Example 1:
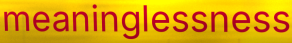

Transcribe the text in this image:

meaninglessness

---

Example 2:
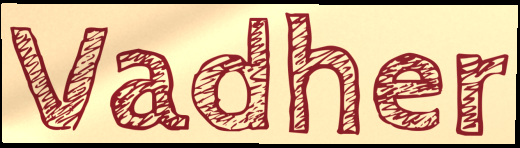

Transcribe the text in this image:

Vadher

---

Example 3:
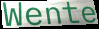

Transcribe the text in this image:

Wente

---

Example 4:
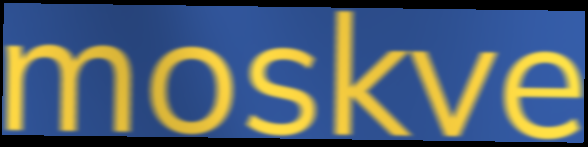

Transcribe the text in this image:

moskve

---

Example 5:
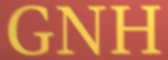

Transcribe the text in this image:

GNH